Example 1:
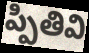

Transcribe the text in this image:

ప్పితివి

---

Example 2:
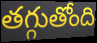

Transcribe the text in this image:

తగ్గుతోంది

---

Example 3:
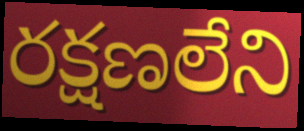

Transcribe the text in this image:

రక్షణలేని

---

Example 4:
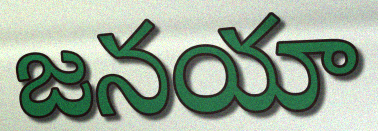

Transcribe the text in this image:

జనయా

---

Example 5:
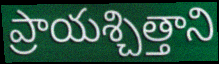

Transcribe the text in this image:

ప్రాయశ్చిత్తాని